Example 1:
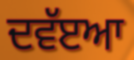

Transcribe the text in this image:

ਦਵੱੲਆ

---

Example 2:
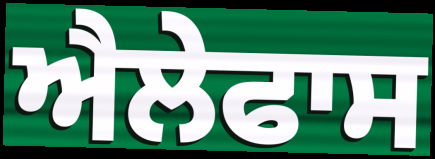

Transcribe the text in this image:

ਐਲੇਫਾਸ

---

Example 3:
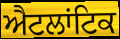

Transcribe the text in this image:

ਐਟਲਾਂਟਿਕ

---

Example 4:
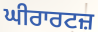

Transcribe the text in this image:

ਘੀਰਾਰਟਜ਼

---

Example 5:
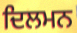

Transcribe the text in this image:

ਦਿਲਮਨ